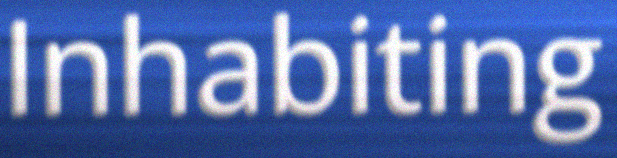
Inhabiting